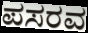
ಪಸರವ